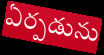
ఏర్పడును